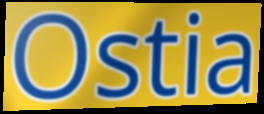
Ostia